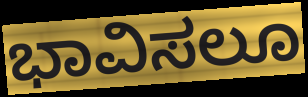
ಭಾವಿಸಲೂ